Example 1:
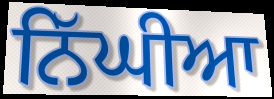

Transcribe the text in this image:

ਨਿੱਘੀਆ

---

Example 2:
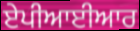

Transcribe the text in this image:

ਏਪੀਆਈਆਰ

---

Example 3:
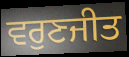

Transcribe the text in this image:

ਵਰੁਣਜੀਤ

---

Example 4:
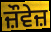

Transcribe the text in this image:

ਜ਼ੌਵੇਜ਼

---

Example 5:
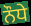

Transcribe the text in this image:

ਨੌਧੇ